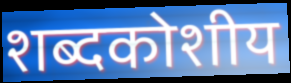
शब्दकोशीय